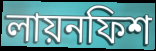
লায়নফিশ